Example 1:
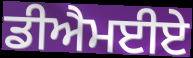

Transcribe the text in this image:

ਡੀਐਮਈਏ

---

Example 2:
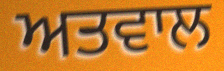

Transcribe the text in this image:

ਅਤਵਾਲ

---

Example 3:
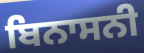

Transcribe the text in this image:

ਬਿਨਾਸਨੀ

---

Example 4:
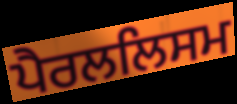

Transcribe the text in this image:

ਪੈਰਲਲਿਸਮ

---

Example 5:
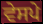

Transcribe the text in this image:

ਵੇਸਪੇ